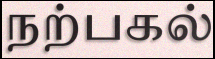
நற்பகல்